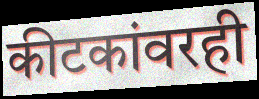
कीटकांवरही